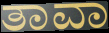
ತಾವಾ